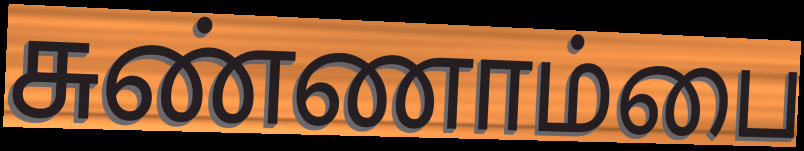
சுண்ணாம்பை